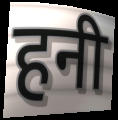
हनी